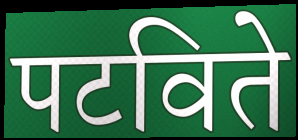
पटविते